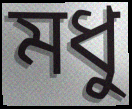
মধু